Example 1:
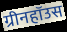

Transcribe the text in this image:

ग्रीनहॉउस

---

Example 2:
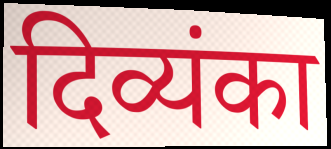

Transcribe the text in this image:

दिव्यंका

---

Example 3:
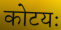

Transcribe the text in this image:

कोटयः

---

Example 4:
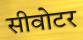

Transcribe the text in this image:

सीवोटर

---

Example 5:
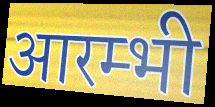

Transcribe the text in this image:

आरम्भी